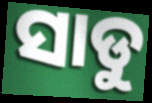
ସାଡୁ